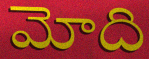
మోది